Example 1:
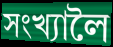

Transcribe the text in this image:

সংখ্যালৈ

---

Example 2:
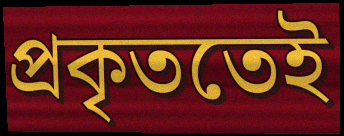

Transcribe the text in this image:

প্ৰকৃততেই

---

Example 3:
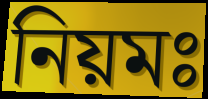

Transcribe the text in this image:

নিয়মঃ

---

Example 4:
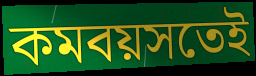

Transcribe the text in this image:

কমবয়সতেই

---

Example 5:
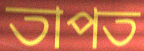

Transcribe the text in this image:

তাপত